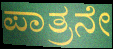
ಪಾತ್ರನೇ